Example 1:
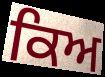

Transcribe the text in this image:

ਕਿਅ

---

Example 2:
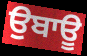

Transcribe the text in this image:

ਉਬਾਊ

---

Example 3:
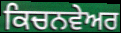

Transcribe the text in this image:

ਕਿਚਨਵੇਅਰ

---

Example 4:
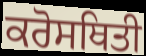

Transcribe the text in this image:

ਕਰੋਸਥਿਤੀ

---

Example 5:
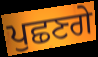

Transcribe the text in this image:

ਪੁਛਣਗੇ